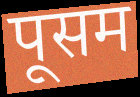
पूसम